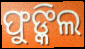
ଫୁଙ୍କିଲ